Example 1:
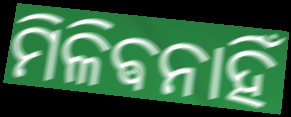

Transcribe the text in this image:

ମିଳିଵନାହିଁ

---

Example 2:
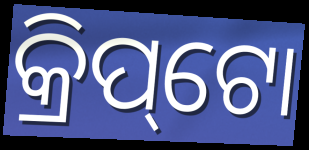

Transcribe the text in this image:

କ୍ରିପ୍‌ଟୋ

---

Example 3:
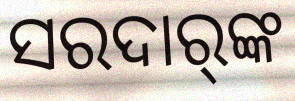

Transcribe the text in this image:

ସରଦାର୍‍ଙ୍କ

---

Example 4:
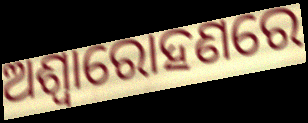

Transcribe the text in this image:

ଅଶ୍ଵାରୋହଣରେ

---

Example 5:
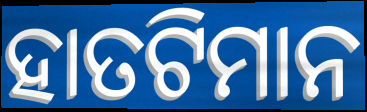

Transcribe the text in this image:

ହାତଟିମାନ